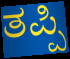
ತಪ್ಪಿ